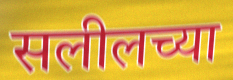
सलीलच्या